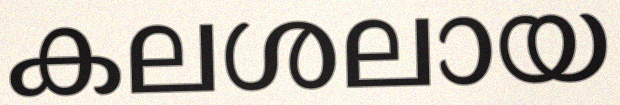
കലശലായ